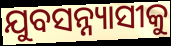
ଯୁବସନ୍ନ୍ୟାସୀକୁ